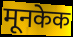
मूनकेक